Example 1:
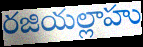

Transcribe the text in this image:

రజియల్లాహు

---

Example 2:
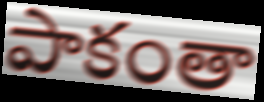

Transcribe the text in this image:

పాకంతా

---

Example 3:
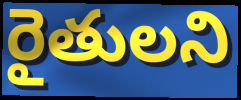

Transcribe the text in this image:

రైతులని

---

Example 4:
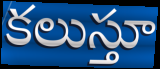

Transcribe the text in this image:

కలుస్తూ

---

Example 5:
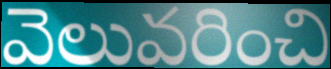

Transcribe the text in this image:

వెలువరించి